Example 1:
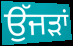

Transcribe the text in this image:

ਉੱਜੜਾਂ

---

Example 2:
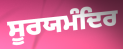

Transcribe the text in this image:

ਸੂਰਯਮੰਦਿਰ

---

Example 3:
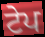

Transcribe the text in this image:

ਟੇਪ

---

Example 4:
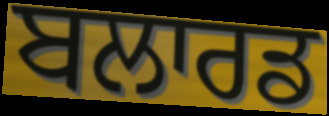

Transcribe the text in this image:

ਬਲਾਰਡ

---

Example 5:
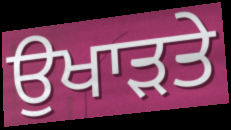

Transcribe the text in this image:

ਉਖਾੜਤੇ